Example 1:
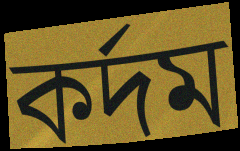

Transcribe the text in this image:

কর্দম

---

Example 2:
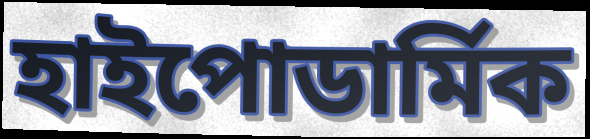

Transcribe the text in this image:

হাইপোডার্মিক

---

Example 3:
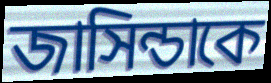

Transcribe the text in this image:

জাসিন্ডাকে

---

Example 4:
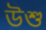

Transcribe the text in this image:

উশু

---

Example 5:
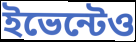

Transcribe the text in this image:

ইভেন্টেও